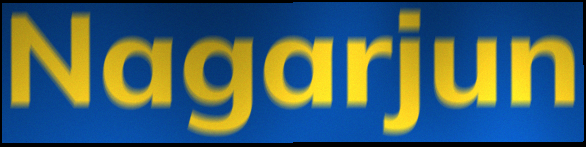
Nagarjun